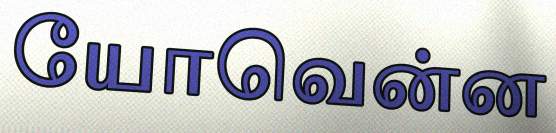
யோவென்ன